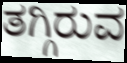
ತಗ್ಗಿರುವ